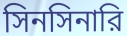
সিনসিনারি